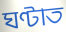
ঘণ্টাত